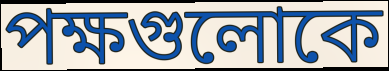
পক্ষগুলোকে